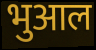
भुआल